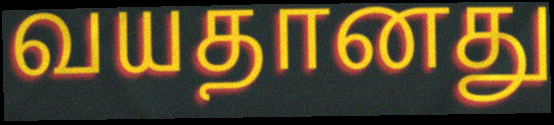
வயதானது